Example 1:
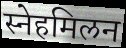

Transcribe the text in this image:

स्नेहमिलन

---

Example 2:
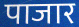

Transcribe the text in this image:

पाजार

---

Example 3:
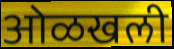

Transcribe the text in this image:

ओळखली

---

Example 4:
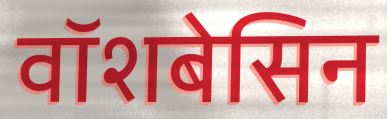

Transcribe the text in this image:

वॉशबेसिन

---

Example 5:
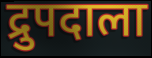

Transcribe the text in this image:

द्रुपदाला